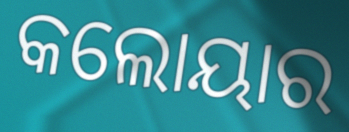
କଲୋୟାର